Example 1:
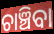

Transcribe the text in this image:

ଚାଞ୍ଚିବା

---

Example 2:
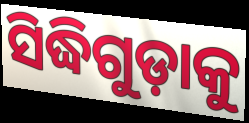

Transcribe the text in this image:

ସିଦ୍ଧିଗୁଡ଼ାକୁ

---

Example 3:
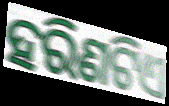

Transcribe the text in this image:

ହରିଣଟିଏ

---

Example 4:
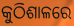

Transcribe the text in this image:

କୁଠିଶାଳରେ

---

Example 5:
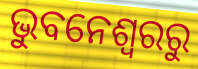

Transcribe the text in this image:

ଭୁବନେଶ୍ୱରରୁ